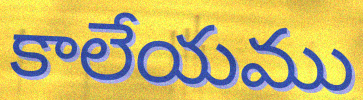
కాలేయము